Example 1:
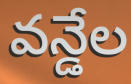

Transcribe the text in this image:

వన్డేల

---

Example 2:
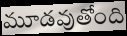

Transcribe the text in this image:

మూడవుతోంది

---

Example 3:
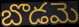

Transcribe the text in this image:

బొడమె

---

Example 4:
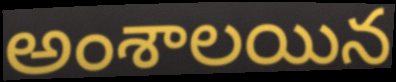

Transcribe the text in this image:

అంశాలయిన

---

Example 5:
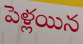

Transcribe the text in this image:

పెళ్లయిన